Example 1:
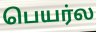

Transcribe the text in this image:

பெயர்ல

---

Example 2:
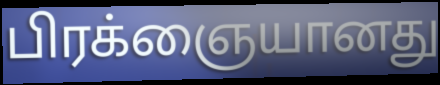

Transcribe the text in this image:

பிரக்ஞையானது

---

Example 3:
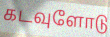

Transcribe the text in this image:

கடவுளோடு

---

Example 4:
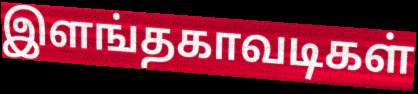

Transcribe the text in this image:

இளங்தகாவடிகள்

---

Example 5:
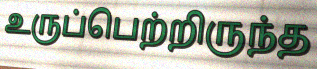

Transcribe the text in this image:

உருப்பெற்றிருந்த